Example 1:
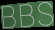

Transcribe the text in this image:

BBS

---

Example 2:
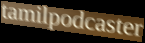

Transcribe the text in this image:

tamilpodcaster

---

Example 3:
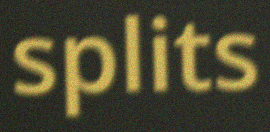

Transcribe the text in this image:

splits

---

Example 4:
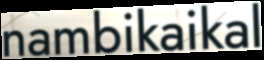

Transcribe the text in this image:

nambikaikal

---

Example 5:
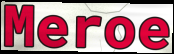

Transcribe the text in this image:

Meroe